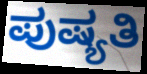
ಪುಷ್ಯತಿ